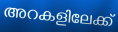
അറകളിലേക്ക്